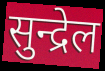
सुन्द्रेल